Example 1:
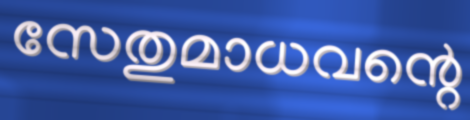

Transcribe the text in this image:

സേതുമാധവന്റെ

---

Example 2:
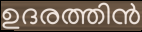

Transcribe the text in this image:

ഉദരത്തിൻ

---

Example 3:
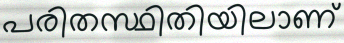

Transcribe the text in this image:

പരിതസ്ഥിതിയിലാണ്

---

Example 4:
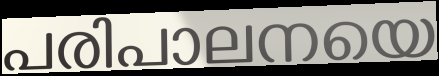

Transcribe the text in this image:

പരിപാലനയെ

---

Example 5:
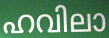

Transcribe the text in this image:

ഹവിലാ